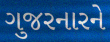
ગુજરનારને